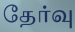
தேர்வு